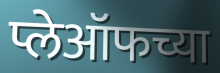
प्लेऑफच्या